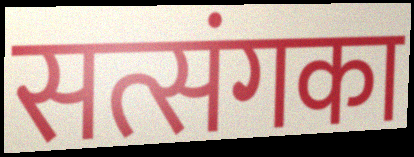
सत्संगका